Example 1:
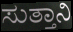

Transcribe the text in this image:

ಸುತ್ತಾನಿ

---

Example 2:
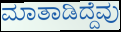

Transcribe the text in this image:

ಮಾತಾಡಿದ್ದೆವು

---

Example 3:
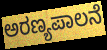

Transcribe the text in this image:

ಅರಣ್ಯಪಾಲನೆ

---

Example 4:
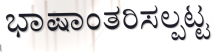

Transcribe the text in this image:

ಭಾಷಾಂತರಿಸಲ್ಪಟ್ಟ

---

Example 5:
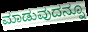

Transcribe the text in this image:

ಮಾಡುವುದನ್ನೂ